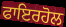
ਫਾਇਰਹੋਲ